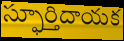
స్ఫూర్తిదాయక